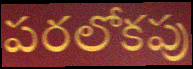
పరలోకపు